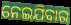
ନେଇଯିବାର